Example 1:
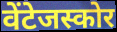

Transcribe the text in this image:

वेंटेजस्कोर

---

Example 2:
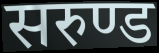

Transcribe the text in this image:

सरुण्ड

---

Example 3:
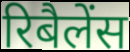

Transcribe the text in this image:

रिबैलेंस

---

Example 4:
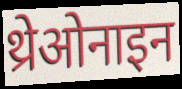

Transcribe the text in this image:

थ्रेओनाइन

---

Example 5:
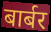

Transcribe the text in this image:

बार्बर